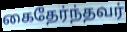
கைதேர்ந்தவர்